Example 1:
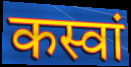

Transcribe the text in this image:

कस्वां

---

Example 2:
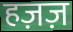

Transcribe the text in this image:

हज़ज़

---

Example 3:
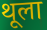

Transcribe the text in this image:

थूला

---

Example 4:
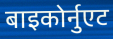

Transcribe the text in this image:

बाइकोर्नुएट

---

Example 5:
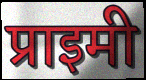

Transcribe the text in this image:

प्राइमी